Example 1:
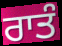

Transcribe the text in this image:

ਰਾਤੰ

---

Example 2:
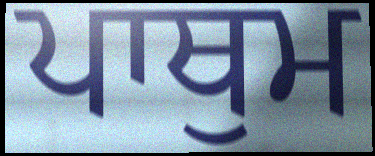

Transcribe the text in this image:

ਪਾਥੁਮ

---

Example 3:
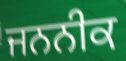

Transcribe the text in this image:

ਜਨਨੀਕ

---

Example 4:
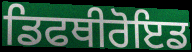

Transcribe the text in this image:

ਡਿਫਥੀਰੋਇਡ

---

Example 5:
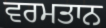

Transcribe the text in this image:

ਵਰਮਤਾਨ